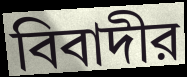
বিবাদীর